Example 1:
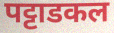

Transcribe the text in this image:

पट्टाडकल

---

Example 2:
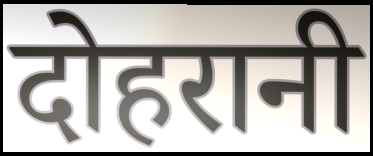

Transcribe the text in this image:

दोहरानी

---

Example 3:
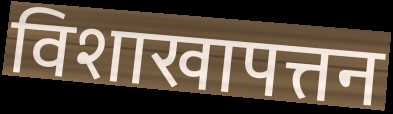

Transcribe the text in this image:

विशाखापत्तन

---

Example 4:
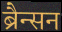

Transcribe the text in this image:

ब्रैन्सन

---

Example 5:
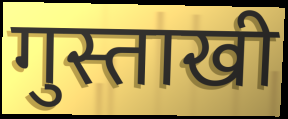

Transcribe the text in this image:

गुस्ताखी